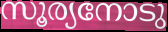
സൂര്യനോടു